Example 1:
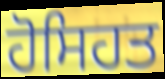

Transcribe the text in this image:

ਹੋਸਿਹਤ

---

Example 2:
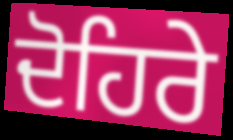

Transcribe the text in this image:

ਦੋਹਿਰੇ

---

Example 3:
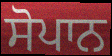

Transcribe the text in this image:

ਸੋਪਾਨ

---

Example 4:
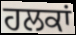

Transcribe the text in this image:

ਹਲਕਾਂ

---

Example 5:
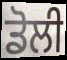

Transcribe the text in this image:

ਡੋਲੀ